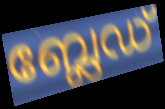
ബ്ലേഡ്